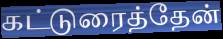
கட்டுரைத்தேன்